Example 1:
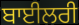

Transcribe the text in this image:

ਬਾਈਲਰੀ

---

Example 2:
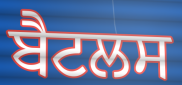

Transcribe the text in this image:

ਬੈਟਲਸ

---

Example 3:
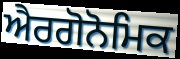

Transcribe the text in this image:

ਐਰਗੋਨੋਮਿਕ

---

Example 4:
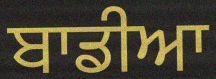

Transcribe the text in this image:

ਬਾਡੀਆ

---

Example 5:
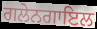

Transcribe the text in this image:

ਗਲੇਨਗਾਇਲ